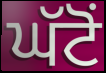
ਘੱਟੋਂ